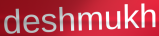
deshmukh